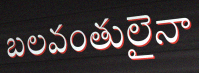
బలవంతులైనా